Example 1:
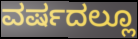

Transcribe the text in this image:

ವರ್ಷದಲ್ಲೂ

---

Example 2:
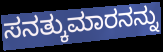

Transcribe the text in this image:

ಸನತ್ಕುಮಾರನನ್ನು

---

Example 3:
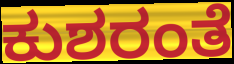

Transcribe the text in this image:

ಕುಶರಂತೆ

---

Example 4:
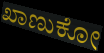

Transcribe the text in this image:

ಖಾಣುಕೋ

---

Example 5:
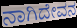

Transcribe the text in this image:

ನಾಗಿದೇವನ